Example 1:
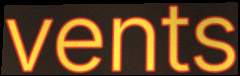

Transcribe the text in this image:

vents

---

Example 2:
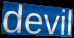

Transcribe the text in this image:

devil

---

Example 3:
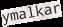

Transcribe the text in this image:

ymalkar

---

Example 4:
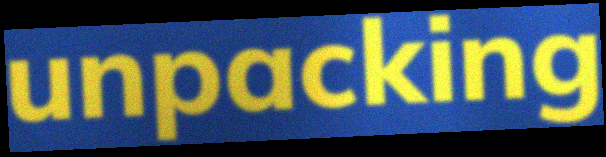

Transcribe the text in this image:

unpacking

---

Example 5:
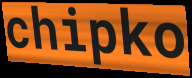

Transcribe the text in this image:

chipko